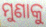
ମୁଣାକୁ